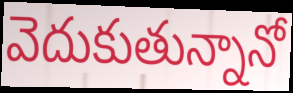
వెదుకుతున్నానో